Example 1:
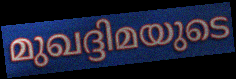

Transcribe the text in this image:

മുഖദ്ദിമയുടെ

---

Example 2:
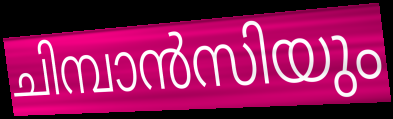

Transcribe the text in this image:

ചിമ്പാൻസിയും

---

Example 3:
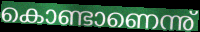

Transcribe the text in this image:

കൊണ്ടാണെന്നു്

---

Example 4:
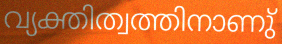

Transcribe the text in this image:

വ്യക്തിത്വത്തിനാണു്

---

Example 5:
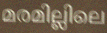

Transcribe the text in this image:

മരമില്ലിലെ